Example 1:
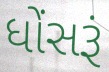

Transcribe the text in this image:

ધોંસરૂં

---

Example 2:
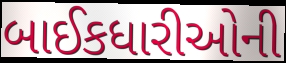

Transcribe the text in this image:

બાઈકધારીઓની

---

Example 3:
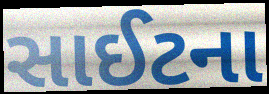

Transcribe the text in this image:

સાઈટના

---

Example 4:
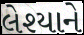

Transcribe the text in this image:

લેશ્યાને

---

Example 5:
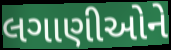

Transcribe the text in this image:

લગાણીઓને